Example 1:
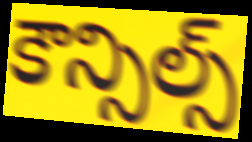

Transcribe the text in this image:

కౌన్సిల్స్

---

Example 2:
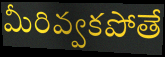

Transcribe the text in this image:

మీరివ్వకపోతే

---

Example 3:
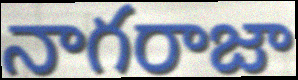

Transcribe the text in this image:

నాగరాజా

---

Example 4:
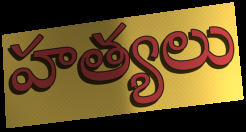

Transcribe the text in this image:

హత్యలు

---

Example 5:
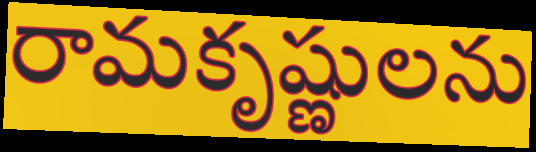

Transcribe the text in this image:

రామకృష్ణులను